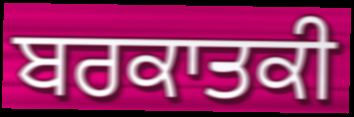
ਬਰਕਾਤਕੀ